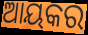
ଆୟକର